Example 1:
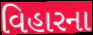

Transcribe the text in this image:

વિહારના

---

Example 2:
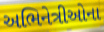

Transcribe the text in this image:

અભિનેત્રીઓના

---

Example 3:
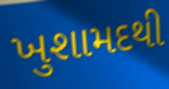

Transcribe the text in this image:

ખુશામદથી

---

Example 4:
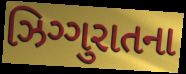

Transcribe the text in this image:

ઝિગ્ગુરાતના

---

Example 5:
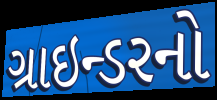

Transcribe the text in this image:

ગ્રાઇન્ડરનો